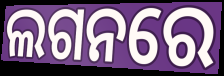
ଲଗନରେ